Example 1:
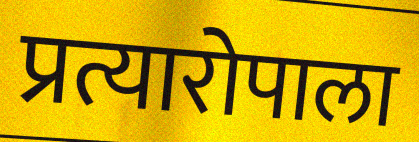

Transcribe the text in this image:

प्रत्यारोपाला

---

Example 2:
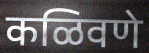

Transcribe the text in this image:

कळिवणे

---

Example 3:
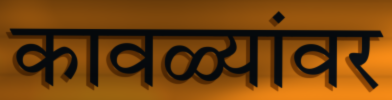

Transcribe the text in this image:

कावळ्यांवर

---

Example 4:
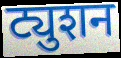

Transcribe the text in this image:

ट्युशन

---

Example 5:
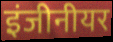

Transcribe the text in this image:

इंजीनीयर